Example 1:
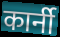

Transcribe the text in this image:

कार्नी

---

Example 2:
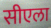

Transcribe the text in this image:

सीएला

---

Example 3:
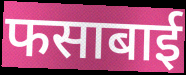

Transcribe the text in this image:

फसाबाई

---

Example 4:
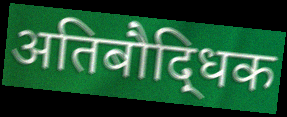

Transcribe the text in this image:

अतिबौद्धिक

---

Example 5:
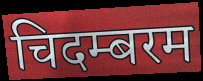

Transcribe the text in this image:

चिदम्बरम